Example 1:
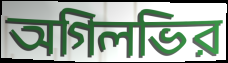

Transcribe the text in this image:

অগিলভির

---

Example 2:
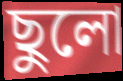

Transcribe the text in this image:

ছুলো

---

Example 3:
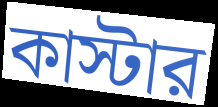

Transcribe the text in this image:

কাস্টার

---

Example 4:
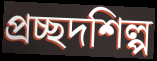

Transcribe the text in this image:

প্রচ্ছদশিল্প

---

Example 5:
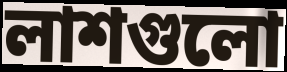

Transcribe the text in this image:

লাশগুলো